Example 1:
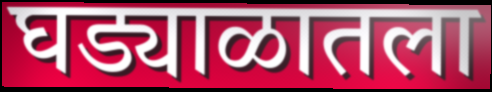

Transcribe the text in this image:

घड्याळातला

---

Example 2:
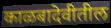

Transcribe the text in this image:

काळबादेवीतील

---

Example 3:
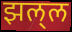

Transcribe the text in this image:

झल्ल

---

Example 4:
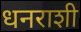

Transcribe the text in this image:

धनराशी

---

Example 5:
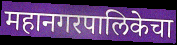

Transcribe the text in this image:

महानगरपालिकेचा